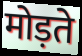
मोड़ते